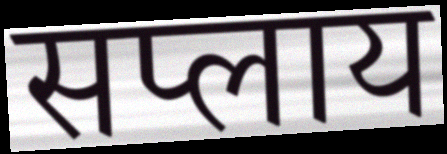
सप्लाय